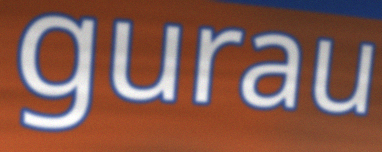
gurau